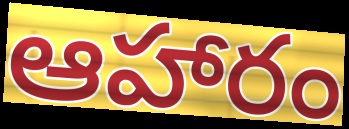
ఆహారం